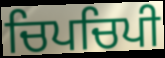
ਚਿਪਚਿਪੀ